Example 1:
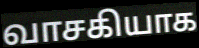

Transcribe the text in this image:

வாசகியாக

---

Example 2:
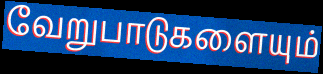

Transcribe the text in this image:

வேறுபாடுகளையும்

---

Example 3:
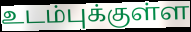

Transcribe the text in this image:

உடம்புக்குள்ள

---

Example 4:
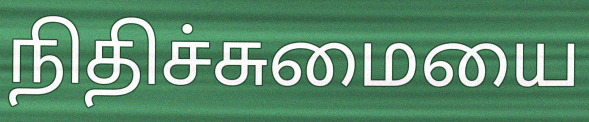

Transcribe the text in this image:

நிதிச்சுமையை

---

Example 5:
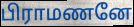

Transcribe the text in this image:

பிராமணனே